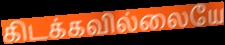
கிடக்கவில்லையே